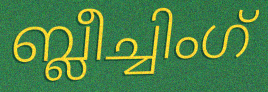
ബ്ലീച്ചിംഗ്